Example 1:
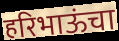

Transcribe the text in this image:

हरिभाऊंचा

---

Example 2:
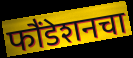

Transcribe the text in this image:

फौंडेशनचा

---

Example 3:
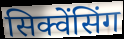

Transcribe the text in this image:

सिक्वेंसिंग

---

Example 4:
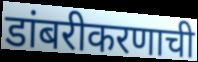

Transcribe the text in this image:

डांबरीकरणाची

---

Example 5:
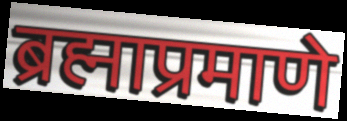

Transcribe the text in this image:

ब्रह्माप्रमाणे